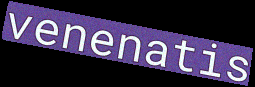
venenatis